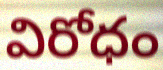
విరోధం